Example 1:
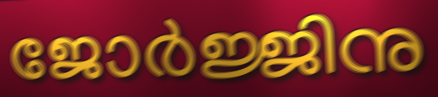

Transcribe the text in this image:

ജോർജ്ജിനു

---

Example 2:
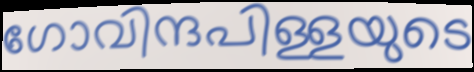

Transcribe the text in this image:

ഗോവിന്ദപിള്ളയുടെ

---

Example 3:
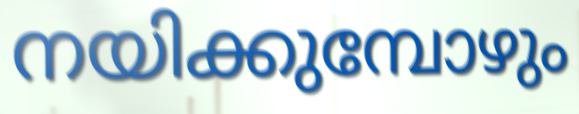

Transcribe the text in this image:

നയിക്കുമ്പോഴും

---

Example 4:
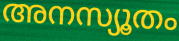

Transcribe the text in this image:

അനസ്യൂതം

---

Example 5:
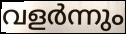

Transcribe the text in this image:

വളർന്നും